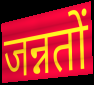
जन्नतों